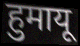
हुमायू